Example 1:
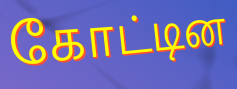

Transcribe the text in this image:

கோட்டின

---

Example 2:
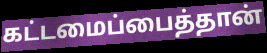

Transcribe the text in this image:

கட்டமைப்பைத்தான்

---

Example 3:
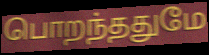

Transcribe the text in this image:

பொறந்ததுமே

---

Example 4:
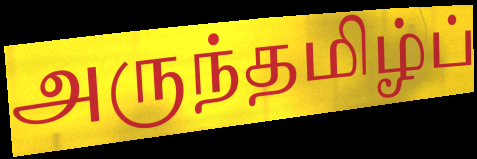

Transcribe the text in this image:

அருந்தமிழ்ப்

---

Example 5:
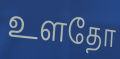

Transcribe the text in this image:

உளதோ